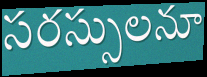
సరస్సులనూ